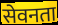
सेवनता